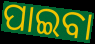
ପାଇବା